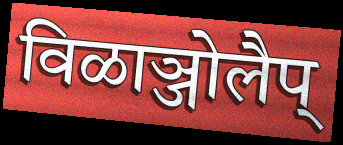
विळाञ्जोलैप्